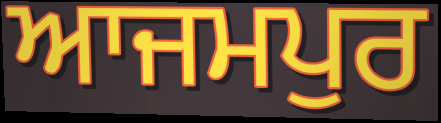
ਆਜਮਪੁਰ